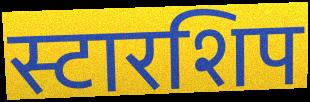
स्टारशिप